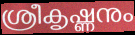
ശ്രീകൃഷ്ണനും